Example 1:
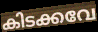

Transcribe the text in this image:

കിടക്കവേ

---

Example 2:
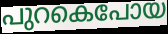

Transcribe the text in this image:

പുറകെപോയ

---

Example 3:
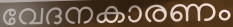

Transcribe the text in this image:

വേദനകാരണം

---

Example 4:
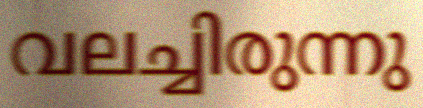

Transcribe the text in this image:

വലച്ചിരുന്നു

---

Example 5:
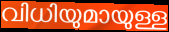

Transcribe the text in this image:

വിധിയുമായുള്ള